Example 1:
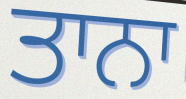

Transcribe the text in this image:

ਤਾਨਾ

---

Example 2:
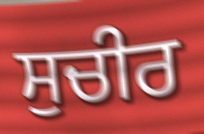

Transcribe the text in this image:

ਸੁਚੀਰ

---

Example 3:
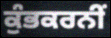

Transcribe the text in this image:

ਕੁੰਭਕਰਨੀਂ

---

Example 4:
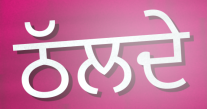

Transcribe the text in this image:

ਠੱਲਦੇ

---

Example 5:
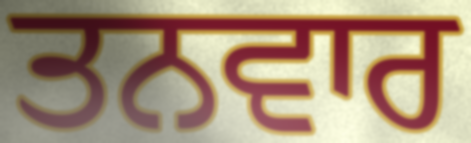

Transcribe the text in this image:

ਤਨਵਾਰ